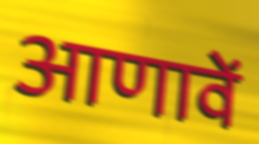
आणावें